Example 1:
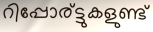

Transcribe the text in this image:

റിപ്പോര്ട്ടുകളുണ്ട്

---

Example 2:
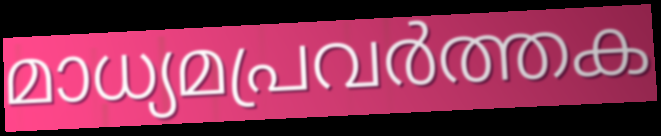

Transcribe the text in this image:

മാധ്യമപ്രവർത്തക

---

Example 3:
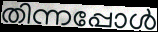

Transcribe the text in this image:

തിന്നപ്പോൾ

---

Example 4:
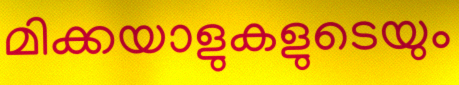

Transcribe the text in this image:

മിക്കയാളുകളുടെയും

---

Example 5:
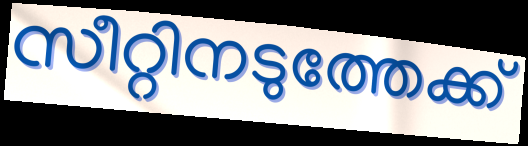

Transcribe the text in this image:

സീറ്റിനടുത്തേക്ക്